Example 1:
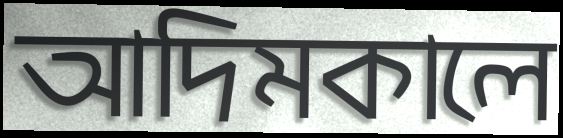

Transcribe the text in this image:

আদিমকালে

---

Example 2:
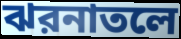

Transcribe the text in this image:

ঝরনাতলে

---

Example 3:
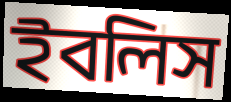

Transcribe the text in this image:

ইবলিস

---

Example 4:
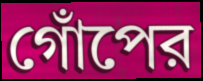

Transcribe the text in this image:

গোঁপের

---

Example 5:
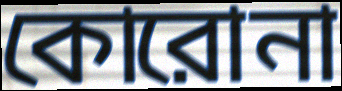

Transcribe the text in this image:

কোরোনা